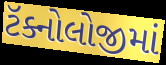
ટૅક્નોલોજીમાં